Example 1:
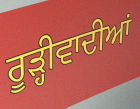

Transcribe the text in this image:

ਰੂੜ੍ਹੀਵਾਦੀਆਂ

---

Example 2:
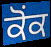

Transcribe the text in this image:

ਕੋਂਕ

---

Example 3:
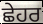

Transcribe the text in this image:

ਛੇਹਰ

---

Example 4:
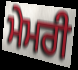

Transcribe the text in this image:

ਮੇਮਰੀ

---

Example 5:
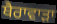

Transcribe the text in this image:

ਥੈਰਾਵਾੜਾ